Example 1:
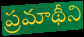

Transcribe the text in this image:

ప్రమాథీని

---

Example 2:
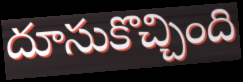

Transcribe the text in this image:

దూసుకొచ్చింది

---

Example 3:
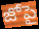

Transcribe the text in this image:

జోపై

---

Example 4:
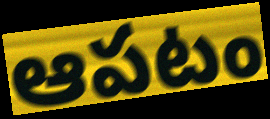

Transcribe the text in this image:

ఆపటం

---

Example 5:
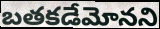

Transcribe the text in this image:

బతకడేమోనని